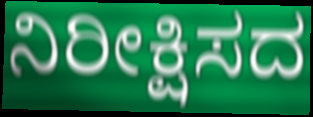
ನಿರೀಕ್ಷಿಸದ